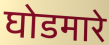
घोडमारे